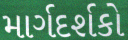
માર્ગદર્શકો